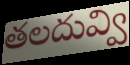
తలదువ్వి